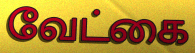
வேட்கை